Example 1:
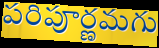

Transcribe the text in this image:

పరిపూర్ణమగు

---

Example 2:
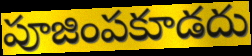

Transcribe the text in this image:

పూజింపకూడదు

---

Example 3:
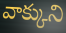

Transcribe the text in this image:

వాక్కుని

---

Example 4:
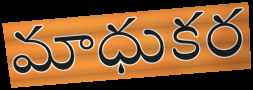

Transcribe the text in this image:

మాధుకర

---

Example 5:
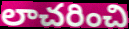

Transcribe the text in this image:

లాచరించి